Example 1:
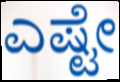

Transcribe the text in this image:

ಎಷ್ಟೇ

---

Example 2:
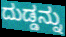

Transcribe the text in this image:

ದುಡ್ಡನ್ನು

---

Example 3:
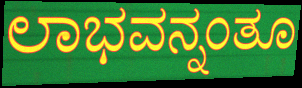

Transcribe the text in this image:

ಲಾಭವನ್ನಂತೂ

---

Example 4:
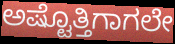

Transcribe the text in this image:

ಅಷ್ಟೊತ್ತಿಗಾಗಲೇ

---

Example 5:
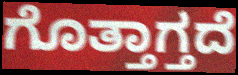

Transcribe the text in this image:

ಗೊತ್ತಾಗ್ತದೆ